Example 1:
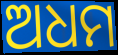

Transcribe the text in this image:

ଅଧମ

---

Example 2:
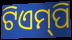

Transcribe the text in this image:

ଟିଏମ୍‌ପି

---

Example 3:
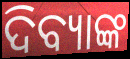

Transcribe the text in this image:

ଦିବ୍ୟାଙ୍କ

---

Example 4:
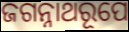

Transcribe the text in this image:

ଜଗନ୍ନାଥରୂପେ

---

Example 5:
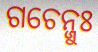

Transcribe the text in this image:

ଗଚେନ୍ଜୁଃ